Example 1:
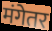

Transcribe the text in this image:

मंगेतर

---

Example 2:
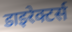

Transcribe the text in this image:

डाइरेक्टर्स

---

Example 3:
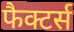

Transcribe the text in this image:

फैक्टर्स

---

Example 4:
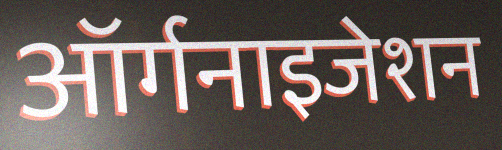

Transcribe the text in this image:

ऑर्गनाइजेशन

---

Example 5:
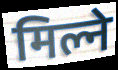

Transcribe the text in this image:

मिल्ने